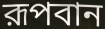
রূপবান